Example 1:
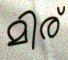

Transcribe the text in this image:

മിര്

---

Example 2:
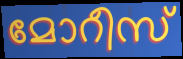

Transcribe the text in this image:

മോറീസ്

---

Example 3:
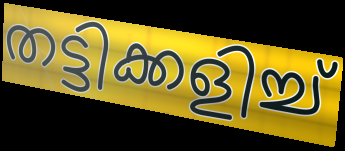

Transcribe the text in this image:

തട്ടിക്കളിച്ച്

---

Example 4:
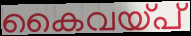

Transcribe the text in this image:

കൈവയ്പ്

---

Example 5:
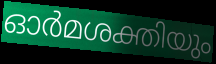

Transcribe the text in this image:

ഓർമശക്തിയും